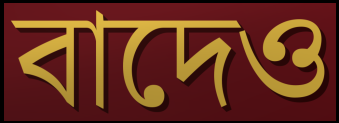
বাদেও